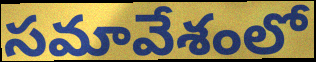
సమావేశంలో